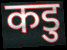
कडु